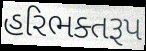
હરિભક્તરૂપ